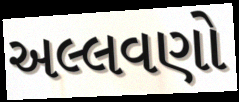
અલ્લવણો